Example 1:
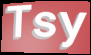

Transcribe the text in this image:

Tsy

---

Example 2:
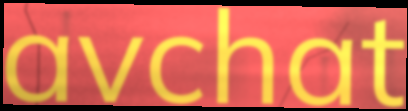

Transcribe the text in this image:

avchat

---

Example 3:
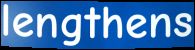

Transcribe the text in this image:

lengthens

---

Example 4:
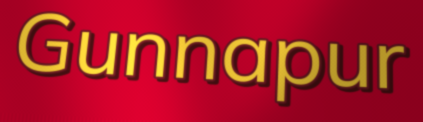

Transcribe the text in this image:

Gunnapur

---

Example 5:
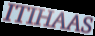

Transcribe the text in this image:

ITIHAAS